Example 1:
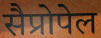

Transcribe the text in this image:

सैप्रोपेल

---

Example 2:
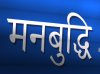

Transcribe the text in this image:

मनबुद्धि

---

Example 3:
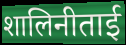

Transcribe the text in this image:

शालिनीताई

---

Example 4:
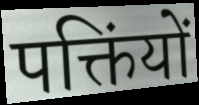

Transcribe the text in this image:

पक्तिंयों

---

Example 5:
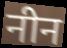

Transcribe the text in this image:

नीन